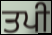
ਤਪੀ